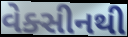
વેક્સીનથી